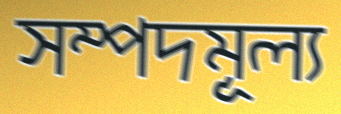
সম্পদমূল্য